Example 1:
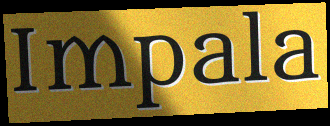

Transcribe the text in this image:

Impala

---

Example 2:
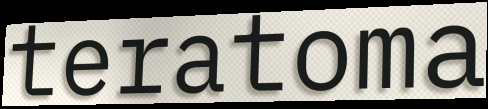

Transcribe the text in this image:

teratoma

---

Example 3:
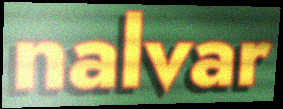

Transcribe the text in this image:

nalvar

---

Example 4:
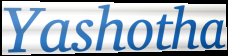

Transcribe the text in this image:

Yashotha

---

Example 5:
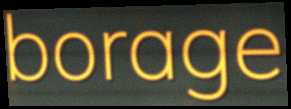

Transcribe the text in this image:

borage